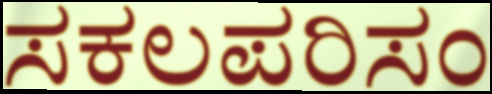
ಸಕಲಪರಿಸಂ